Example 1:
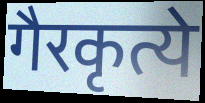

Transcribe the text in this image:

गैरकृत्ये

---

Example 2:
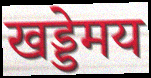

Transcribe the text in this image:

खड्डेमय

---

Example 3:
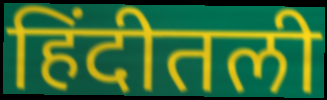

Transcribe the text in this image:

हिंदीतली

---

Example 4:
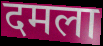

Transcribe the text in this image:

दमला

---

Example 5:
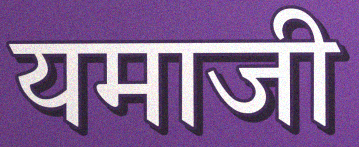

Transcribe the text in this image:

यमाजी